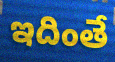
ఇదింతే